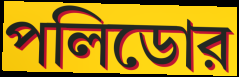
পলিডোর